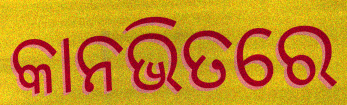
କାନଭିତରେ